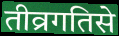
तीव्रगतिसे